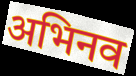
अभिनव